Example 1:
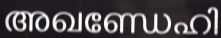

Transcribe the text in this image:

അഖണ്ഡേഹി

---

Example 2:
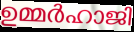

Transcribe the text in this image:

ഉമ്മർഹാജി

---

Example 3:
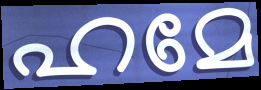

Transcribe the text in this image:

ഹമേ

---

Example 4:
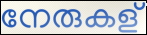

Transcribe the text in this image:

നേരുകള്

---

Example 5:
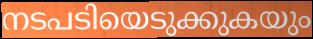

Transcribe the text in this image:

നടപടിയെടുക്കുകയും